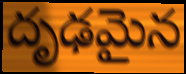
దృఢమైన